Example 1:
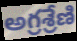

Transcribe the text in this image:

అగ్రశ్రేణి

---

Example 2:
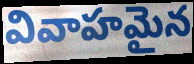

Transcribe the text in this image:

వివాహమైన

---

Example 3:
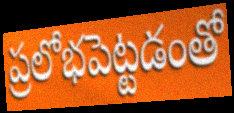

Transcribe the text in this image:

ప్రలోభపెట్టడంతో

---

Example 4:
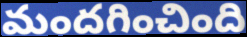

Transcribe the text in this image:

మందగించింది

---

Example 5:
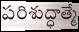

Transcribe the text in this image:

పరిశుద్ధాత్మే